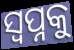
ସ୍ବପ୍ନକୁ